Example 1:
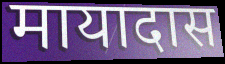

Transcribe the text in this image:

मायादास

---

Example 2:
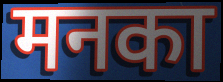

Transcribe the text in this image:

मनका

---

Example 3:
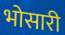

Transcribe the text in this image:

भोसारी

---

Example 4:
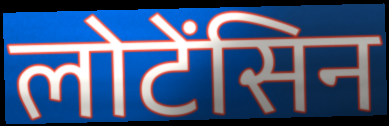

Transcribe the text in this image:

लोटेंसिन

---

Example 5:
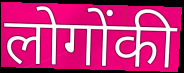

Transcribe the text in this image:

लोगोंकी